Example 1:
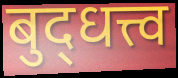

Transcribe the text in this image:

बुद्धत्त्व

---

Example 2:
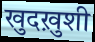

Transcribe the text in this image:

खुदख़ुशी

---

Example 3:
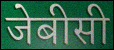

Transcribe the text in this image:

जेबीसी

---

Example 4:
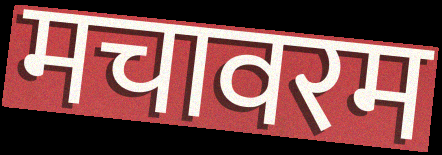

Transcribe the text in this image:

मचावरम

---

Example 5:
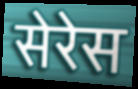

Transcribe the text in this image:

सेरेस